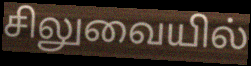
சிலுவையில்